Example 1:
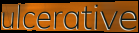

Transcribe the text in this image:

ulcerative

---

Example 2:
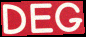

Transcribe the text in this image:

DEG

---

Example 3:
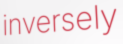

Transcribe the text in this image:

inversely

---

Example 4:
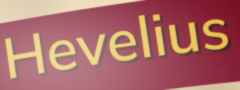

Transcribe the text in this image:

Hevelius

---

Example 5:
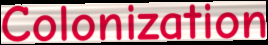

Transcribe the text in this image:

Colonization